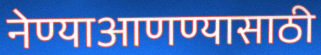
नेण्याआणण्यासाठी